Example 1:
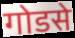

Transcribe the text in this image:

गोडसे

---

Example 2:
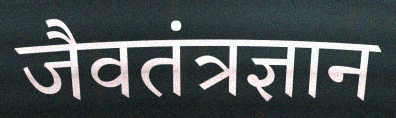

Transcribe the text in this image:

जैवतंत्रज्ञान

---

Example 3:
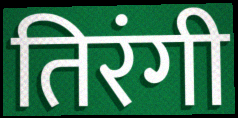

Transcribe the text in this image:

तिरंगी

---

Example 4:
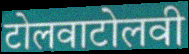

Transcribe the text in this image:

टोलवाटोलवी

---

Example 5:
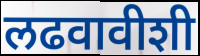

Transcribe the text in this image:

लढवावीशी